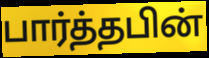
பார்த்தபின்